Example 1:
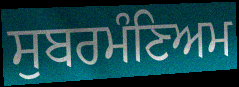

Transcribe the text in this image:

ਸੁਬਰਮੰਣਿਅਮ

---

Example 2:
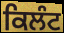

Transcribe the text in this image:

ਕਿਲੰਟ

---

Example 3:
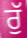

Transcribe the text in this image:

ਰੁੱ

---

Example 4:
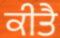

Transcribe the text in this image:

ਕੀਤੈ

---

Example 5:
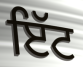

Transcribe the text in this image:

ਇੱਟ